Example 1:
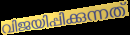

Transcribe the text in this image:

വിജയിപ്പിക്കുന്നത്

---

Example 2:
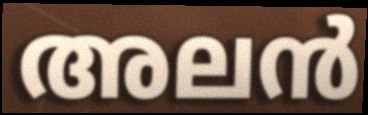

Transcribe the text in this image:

അലൻ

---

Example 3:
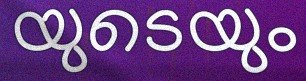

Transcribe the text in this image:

യുടെയും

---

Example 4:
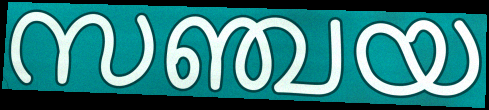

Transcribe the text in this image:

സഞ്ചയ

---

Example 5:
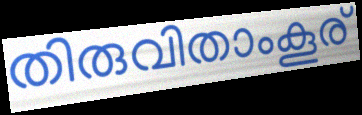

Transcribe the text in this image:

തിരുവിതാംകൂര്